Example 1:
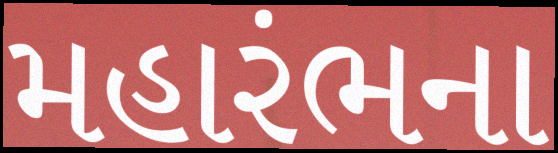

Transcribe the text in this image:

મહારંભના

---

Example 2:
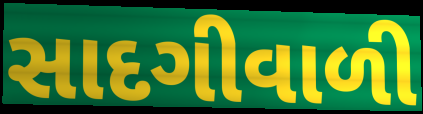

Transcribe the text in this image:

સાદગીવાળી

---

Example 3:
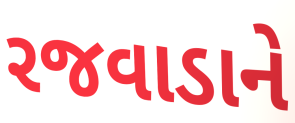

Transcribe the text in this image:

રજવાડાને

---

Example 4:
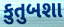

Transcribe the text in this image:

કુતુબશા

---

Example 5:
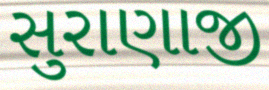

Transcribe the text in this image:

સુરાણાજી